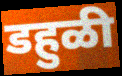
डहुळी